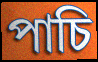
পাচি